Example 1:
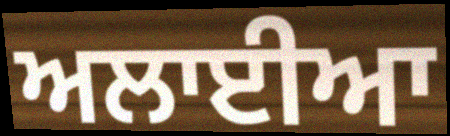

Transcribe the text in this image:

ਅਲਾਈਆ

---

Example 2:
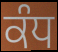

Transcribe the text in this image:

ਕੰਧ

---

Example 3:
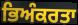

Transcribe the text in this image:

ਭਿਅੰਕਰਤਾ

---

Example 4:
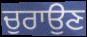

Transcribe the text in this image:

ਚੁਰਾਉਣ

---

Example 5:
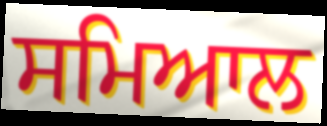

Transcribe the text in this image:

ਸਮਿਆਲ